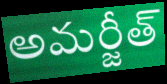
అమర్జీత్